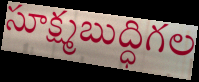
సూక్ష్మబుద్ధిగల